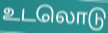
உடலொடு